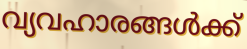
വ്യവഹാരങ്ങൾക്ക്